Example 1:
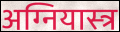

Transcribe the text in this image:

अग्नियास्त्र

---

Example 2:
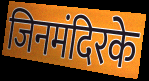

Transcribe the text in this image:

जिनमंदिरके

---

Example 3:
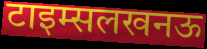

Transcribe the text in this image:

टाइम्सलखनऊ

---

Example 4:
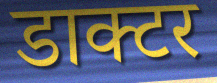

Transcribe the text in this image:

डाक्टर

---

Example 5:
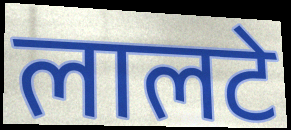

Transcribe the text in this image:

लालटे